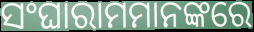
ସଂଘାରାମମାନଙ୍କରେ